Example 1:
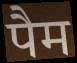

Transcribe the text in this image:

पैम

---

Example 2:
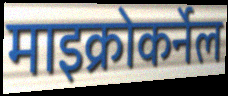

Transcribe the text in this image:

माइक्रोकर्नेल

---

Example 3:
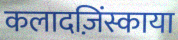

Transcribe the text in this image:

कलादज़िंस्काया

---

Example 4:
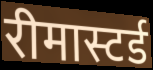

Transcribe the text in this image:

रीमास्टर्ड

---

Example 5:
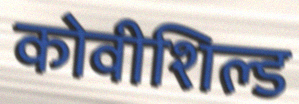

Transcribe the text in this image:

कोवीशिल्ड